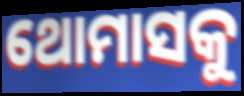
ଥୋମାସକୁ